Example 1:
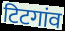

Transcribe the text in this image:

टिटगांव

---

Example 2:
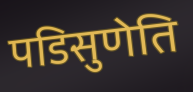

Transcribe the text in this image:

पडिसुणेति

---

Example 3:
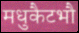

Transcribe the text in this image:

मधुकैटभौ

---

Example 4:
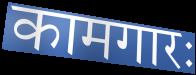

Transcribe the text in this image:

कामगारः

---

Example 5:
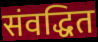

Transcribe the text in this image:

संवद्धित